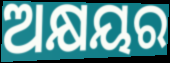
ଅକ୍ଷୟର